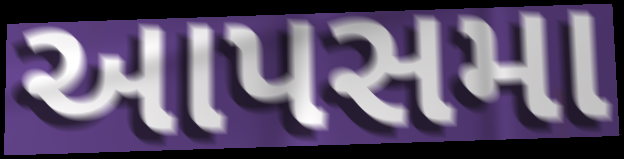
આપસમા